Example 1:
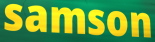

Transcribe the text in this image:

samson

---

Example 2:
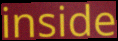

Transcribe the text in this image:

inside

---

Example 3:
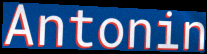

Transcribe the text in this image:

Antonin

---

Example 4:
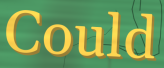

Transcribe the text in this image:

Could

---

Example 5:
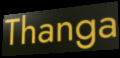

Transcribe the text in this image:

Thanga